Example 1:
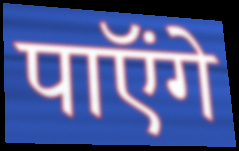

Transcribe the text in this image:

पाऍंगे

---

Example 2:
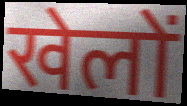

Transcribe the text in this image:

खेलों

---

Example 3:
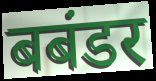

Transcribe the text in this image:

बबंडर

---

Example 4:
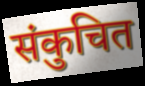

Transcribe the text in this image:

संकुचित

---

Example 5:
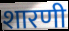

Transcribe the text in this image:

शारणी